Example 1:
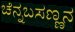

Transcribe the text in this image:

ಚೆನ್ನಬಸಣ್ಣನ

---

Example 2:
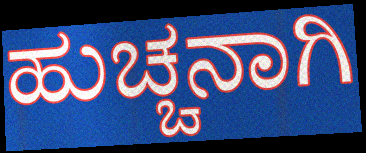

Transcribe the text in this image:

ಹುಚ್ಚನಾಗಿ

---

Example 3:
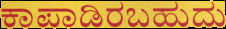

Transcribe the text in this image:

ಕಾಪಾಡಿರಬಹುದು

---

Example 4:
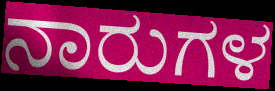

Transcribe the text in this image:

ನಾರುಗಳ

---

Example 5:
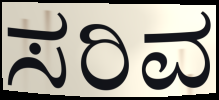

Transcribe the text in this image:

ಸರಿವ